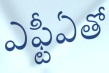
ఎఫ్టీఏతో